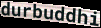
durbuddhi